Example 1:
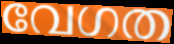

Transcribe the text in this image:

വേഗത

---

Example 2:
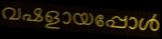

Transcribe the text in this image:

വഷളായപ്പോൾ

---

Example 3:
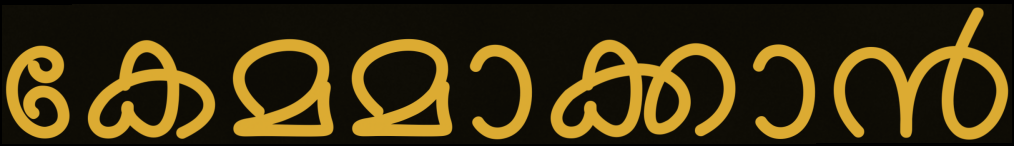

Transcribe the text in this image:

കേമമാക്കാൻ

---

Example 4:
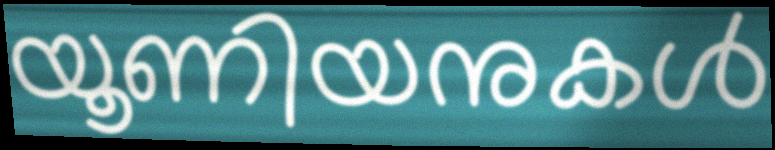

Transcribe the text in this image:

യൂണിയനുകൾ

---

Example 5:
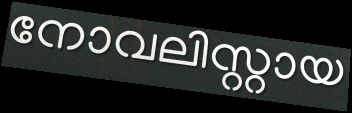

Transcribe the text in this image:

നോവലിസ്റ്റായ